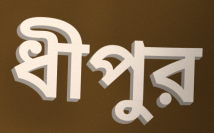
ধীপুর